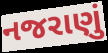
નજરાણું